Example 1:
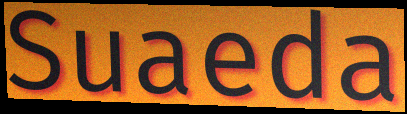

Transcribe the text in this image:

Suaeda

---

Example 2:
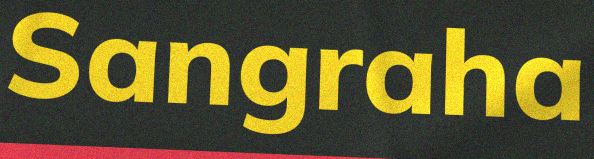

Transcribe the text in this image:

Sangraha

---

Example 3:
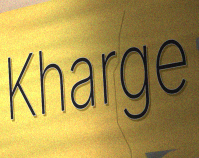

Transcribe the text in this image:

Kharge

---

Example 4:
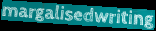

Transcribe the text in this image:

margalisedwriting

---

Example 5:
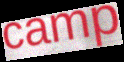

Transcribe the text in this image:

camp